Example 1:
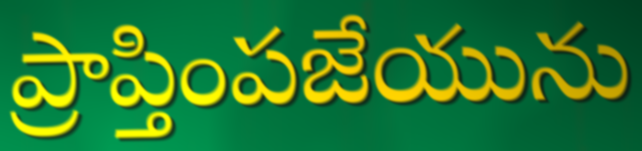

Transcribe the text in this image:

ప్రాప్తింపజేయును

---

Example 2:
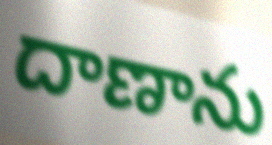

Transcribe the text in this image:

దాణాను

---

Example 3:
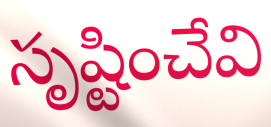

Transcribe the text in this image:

సృష్టించేవి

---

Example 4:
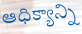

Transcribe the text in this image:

ఆధిక్యాన్ని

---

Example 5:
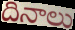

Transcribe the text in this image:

దినాలు